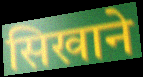
सिखाने